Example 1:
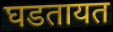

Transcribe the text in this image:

घडतायत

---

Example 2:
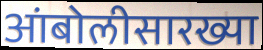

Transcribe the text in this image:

आंबोलीसारख्या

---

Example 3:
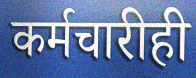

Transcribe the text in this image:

कर्मचारीही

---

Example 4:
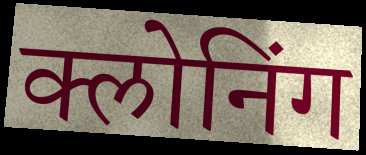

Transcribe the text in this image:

क्लोनिंग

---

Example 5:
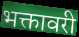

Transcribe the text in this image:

भक्तावरी